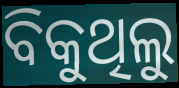
ବିକୁଥିଲୁ